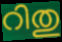
റിതു